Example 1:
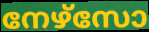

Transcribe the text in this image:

നേഴ്സോ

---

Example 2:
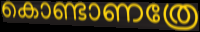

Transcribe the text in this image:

കൊണ്ടാണത്രേ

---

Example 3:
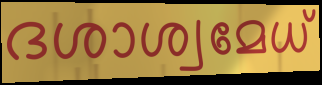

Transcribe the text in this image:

ദശാശ്വമേധ്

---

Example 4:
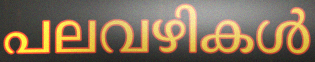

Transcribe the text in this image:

പലവഴികൾ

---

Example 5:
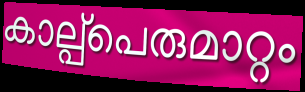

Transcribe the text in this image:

കാല്പ്പെരുമാറ്റം